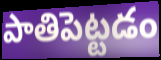
పాతిపెట్టడం